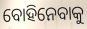
ବୋହିନେବାକୁ